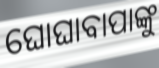
ଘୋଘାବାପାଙ୍କୁ